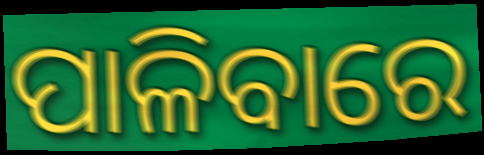
ପାଳିବାରେ